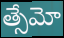
త్సేమో